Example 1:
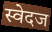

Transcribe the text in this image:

स्वेदज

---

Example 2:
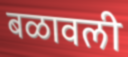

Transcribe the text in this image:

बळावली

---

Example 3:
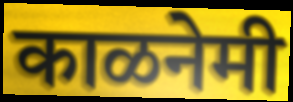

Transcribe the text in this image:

काळनेमी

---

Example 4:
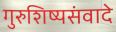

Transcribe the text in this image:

गुरुशिष्यसंवादे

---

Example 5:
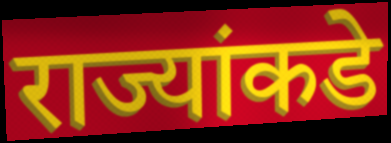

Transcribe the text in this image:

राज्यांकडे